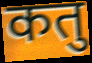
कतु